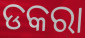
ଡକରା